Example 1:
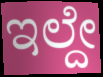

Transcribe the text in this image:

ಇಲ್ದೇ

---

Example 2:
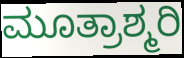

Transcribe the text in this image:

ಮೂತ್ರಾಶ್ಮರಿ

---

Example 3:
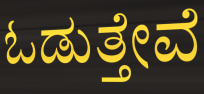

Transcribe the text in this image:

ಓಡುತ್ತೇವೆ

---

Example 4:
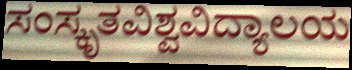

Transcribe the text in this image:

ಸಂಸ್ಕೃತವಿಶ್ವವಿದ್ಯಾಲಯ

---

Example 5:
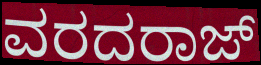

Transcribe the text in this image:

ವರದರಾಜ್